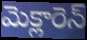
మెక్లారెన్